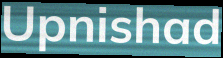
Upnishad